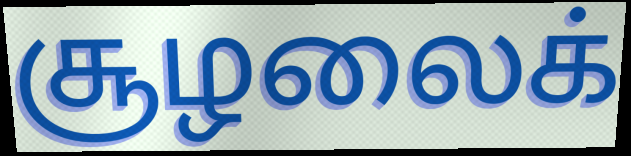
சூழலைக்